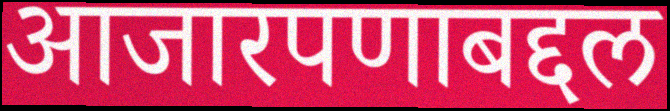
आजारपणाबद्दल